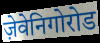
ज़ेवेनिगोरोड